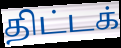
திட்டக்